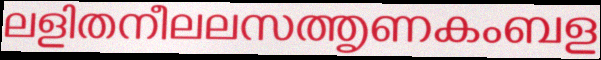
ലളിതനീലലസത്തൃണകംബള